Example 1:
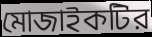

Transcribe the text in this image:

মোজাইকটির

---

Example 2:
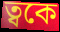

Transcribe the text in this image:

ত্বকে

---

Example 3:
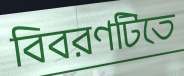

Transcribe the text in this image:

বিবরণটিতে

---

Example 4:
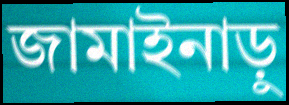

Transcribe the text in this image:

জামাইনাড়ু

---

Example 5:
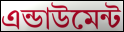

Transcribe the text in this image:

এন্ডাউমেন্ট